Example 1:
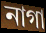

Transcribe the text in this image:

নাগা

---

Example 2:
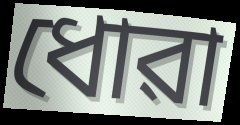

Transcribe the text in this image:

ধোৱা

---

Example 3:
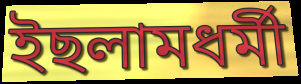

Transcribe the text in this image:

ইছলামধৰ্মী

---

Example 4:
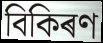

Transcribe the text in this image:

বিকিৰণ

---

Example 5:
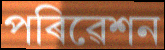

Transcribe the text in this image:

পৰিৱেশন